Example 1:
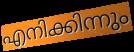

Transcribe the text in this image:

എനിക്കിന്നും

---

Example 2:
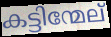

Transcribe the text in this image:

കട്ടിന്മേല്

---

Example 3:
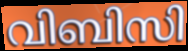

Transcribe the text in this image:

വിബിസി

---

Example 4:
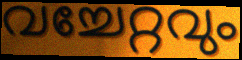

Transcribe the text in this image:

വച്ചേറ്റവും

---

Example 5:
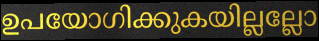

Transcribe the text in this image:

ഉപയോഗിക്കുകയില്ലല്ലോ